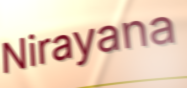
Nirayana